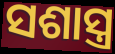
ସଶାସ୍ତ୍ର